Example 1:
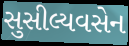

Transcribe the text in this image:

સુસીલ્યવસેન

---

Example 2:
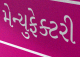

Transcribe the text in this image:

મેન્યુફેક્ટરી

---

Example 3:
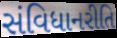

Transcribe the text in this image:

સંવિધાનરીતિ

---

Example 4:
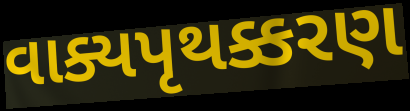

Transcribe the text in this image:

વાક્યપૃથક્કરણ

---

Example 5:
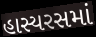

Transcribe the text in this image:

હાસ્યરસમાં